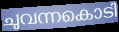
ചുവന്നകൊടി